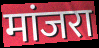
मांजरा